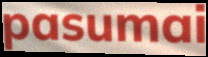
pasumai